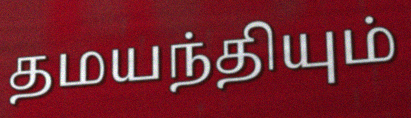
தமயந்தியும்